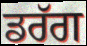
ਡਰੱਗ